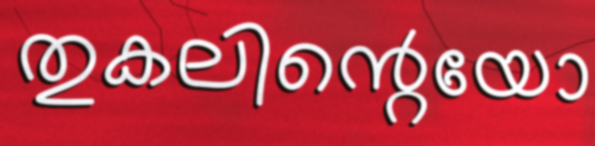
തുകലിന്റെയോ